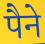
पैने